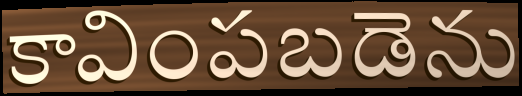
కావింపబడెను